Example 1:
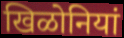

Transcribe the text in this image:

खिळोनियां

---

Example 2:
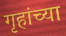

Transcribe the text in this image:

गृहांच्या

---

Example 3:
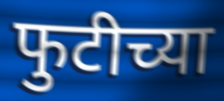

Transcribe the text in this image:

फुटीच्या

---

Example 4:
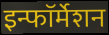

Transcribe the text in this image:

इन्फॉर्मेशन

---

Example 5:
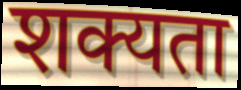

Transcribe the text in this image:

शक्‍यता